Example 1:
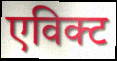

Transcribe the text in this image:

एविक्ट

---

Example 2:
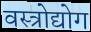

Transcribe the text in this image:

वस्त्रोद्योग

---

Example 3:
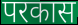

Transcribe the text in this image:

परकास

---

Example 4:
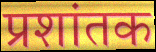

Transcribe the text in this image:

प्रशांतक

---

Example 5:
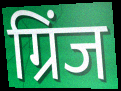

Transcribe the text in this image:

ग्रिंज